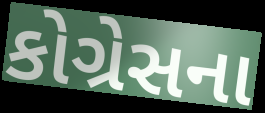
કોગ્રેસના